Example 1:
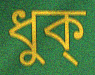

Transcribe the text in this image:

ধুক্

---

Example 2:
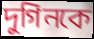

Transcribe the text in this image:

দুগিনকে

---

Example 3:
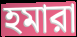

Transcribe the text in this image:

হমারা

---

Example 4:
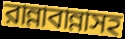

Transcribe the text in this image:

রান্নাবান্নাসহ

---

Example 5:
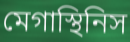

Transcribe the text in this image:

মেগাস্থিনিস